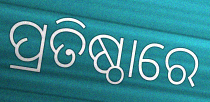
ପ୍ରତିଷ୍ଠାରେ